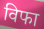
विफा